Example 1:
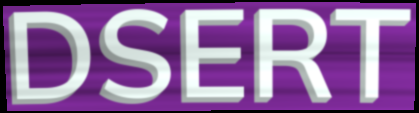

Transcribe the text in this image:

DSERT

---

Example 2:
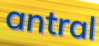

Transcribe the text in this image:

antral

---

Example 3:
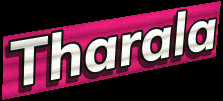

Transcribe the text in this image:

Tharala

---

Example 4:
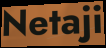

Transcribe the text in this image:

Netaji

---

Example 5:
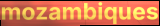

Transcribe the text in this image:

mozambiques